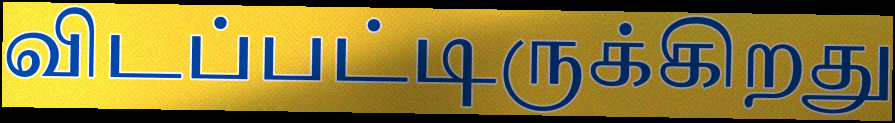
விடப்பட்டிருக்கிறது